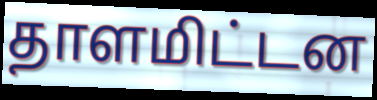
தாளமிட்டன